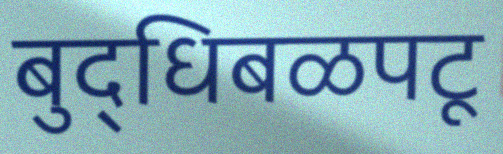
बुद्धिबळपटू